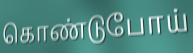
கொண்டுபோய்